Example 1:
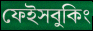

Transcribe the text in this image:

ফেইসবুকিং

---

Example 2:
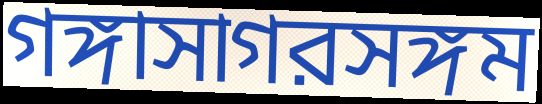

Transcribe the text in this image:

গঙ্গাসাগরসঙ্গম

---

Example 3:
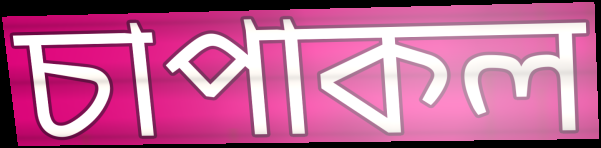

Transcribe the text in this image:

চাপাকল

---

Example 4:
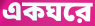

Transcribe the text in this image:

একঘরে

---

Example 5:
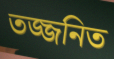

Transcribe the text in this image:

তজ্জনিত